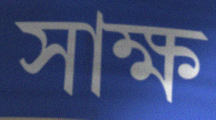
সাক্ষ